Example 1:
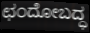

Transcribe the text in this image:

ಛಂದೋಬದ್ಧ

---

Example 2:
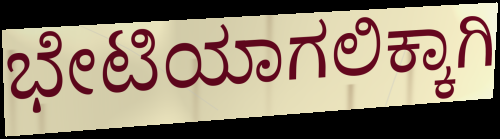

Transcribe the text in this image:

ಭೇಟಿಯಾಗಲಿಕ್ಕಾಗಿ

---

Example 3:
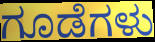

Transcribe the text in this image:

ಗೂಡೆಗಳು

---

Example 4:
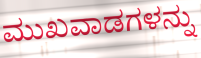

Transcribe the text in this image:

ಮುಖವಾಡಗಳನ್ನು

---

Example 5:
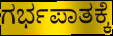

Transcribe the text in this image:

ಗರ್ಭಪಾತಕ್ಕೆ